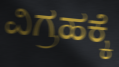
ವಿಗ್ರಹಕ್ಕೆ